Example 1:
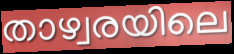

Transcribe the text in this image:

താഴ്വരയിലെ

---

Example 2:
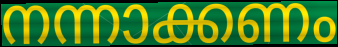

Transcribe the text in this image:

നന്നാക്കണം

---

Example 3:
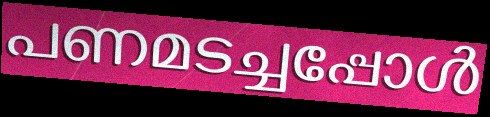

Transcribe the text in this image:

പണമടച്ചപ്പോൾ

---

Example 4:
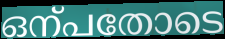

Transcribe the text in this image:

ഒന്പതോടെ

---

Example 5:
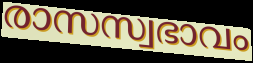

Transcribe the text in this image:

രാസസ്വഭാവം